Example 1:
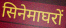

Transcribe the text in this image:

सिनेमाघरों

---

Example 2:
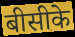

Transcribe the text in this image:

बीसीके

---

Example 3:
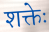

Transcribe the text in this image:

शक्तेः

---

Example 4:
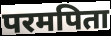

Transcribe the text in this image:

परमपिता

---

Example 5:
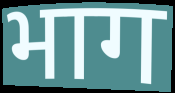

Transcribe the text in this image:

भाग